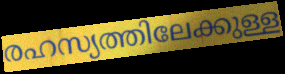
രഹസ്യത്തിലേക്കുള്ള